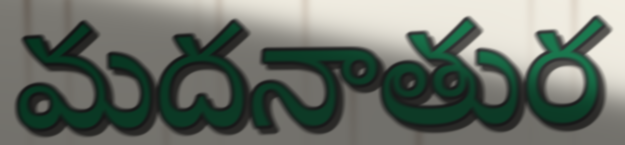
మదనాతుర